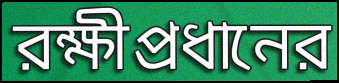
রক্ষীপ্রধানের